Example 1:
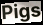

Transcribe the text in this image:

Pigs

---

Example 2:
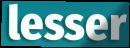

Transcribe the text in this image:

lesser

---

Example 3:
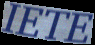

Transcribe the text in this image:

IETE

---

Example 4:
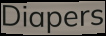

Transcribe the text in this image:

Diapers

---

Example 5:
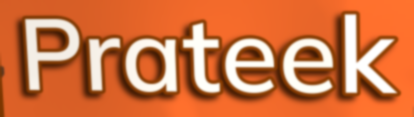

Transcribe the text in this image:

Prateek